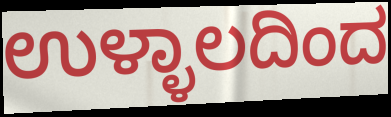
ಉಳ್ಳಾಲದಿಂದ